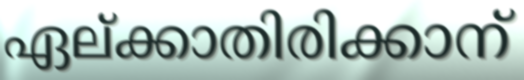
ഏല്ക്കാതിരിക്കാന്